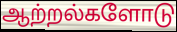
ஆற்றல்களோடு